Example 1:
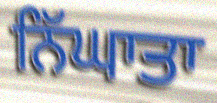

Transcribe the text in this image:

ਨਿੱਘਾਤਾ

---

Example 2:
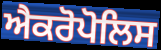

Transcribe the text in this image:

ਐਕਰੋਪੋਲਿਸ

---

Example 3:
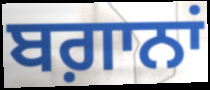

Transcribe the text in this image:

ਬਗ਼ਾਨਾਂ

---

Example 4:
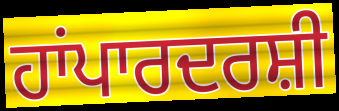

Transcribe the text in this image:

ਹਾਂਪਾਰਦਰਸ਼ੀ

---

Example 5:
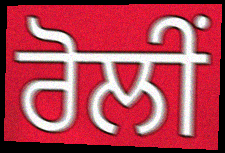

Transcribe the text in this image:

ਰੋਲੀਂ